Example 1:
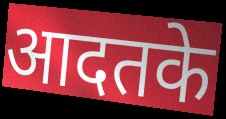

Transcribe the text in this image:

आदतके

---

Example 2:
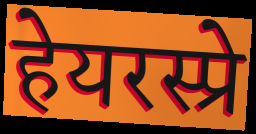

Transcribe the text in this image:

हेयरस्प्रे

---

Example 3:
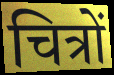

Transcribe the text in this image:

चित्रों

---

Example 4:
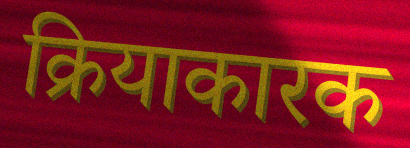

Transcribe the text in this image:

क्रियाकारक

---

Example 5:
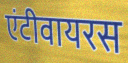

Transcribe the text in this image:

एंटीवायरस